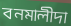
বনমালীদা